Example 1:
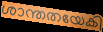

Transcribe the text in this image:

ശാന്തതയേകി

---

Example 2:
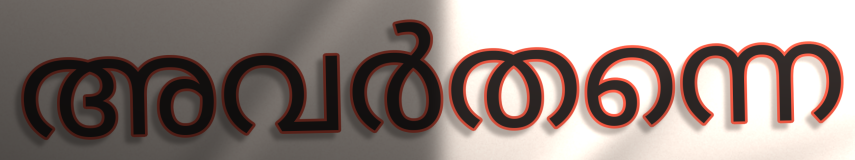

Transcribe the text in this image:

അവർതന്നെ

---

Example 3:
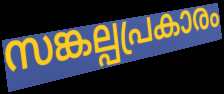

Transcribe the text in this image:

സങ്കല്പപ്രകാരം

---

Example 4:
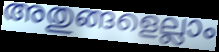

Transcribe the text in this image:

അതുങ്ങളെല്ലാം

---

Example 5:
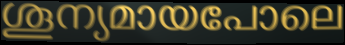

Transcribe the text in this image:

ശൂന്യമായപോലെ